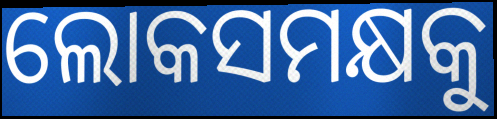
ଲୋକସମକ୍ଷକୁ